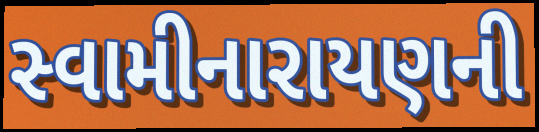
સ્વામીનારાયણની